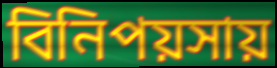
বিনিপয়সায়